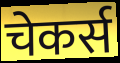
चेकर्स